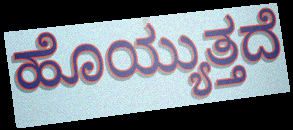
ಹೊಯ್ಯುತ್ತದೆ